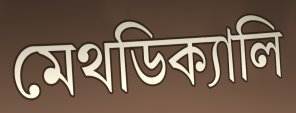
মেথডিক্যালি